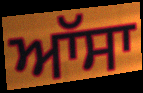
ਆੱਸਾ